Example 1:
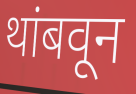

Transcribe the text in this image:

थांबवून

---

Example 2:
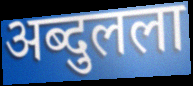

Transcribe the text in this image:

अब्दुलला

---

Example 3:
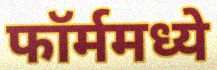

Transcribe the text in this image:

फॉर्ममध्ये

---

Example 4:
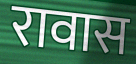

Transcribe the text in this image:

रावास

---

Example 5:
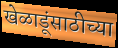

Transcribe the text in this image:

खेळाडूंसाठीच्या